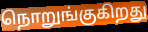
நொறுங்குகிறது